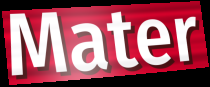
Mater